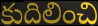
కుదిలించి